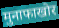
मुनाफाखोर